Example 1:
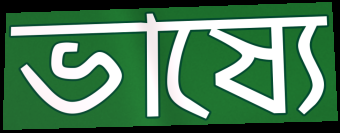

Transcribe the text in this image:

ভাষ্যে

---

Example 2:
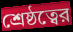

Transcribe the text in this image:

শ্রেষ্ঠত্বের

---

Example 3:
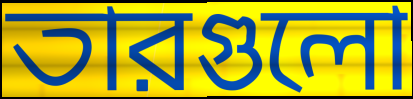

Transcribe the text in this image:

তারগুলো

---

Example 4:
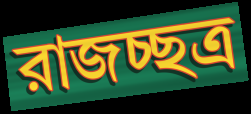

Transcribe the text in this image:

রাজচ্ছত্র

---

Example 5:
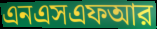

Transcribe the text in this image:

এনএসএফআর